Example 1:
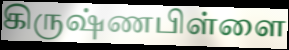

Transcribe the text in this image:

கிருஷ்ணபிள்ளை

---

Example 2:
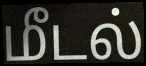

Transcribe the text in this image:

மீடல்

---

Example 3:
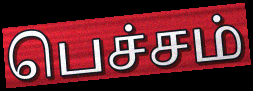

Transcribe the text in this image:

பெச்சம்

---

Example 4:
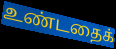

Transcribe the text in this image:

உண்டதைக்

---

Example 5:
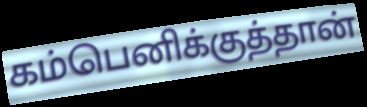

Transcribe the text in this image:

கம்பெனிக்குத்தான்